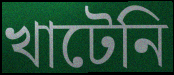
খাটেনি